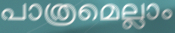
പാത്രമെല്ലാം